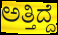
ಅತ್ತಿದ್ದೆ